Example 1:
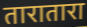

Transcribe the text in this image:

तारातारा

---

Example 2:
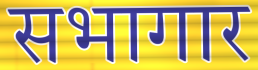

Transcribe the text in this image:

सभागार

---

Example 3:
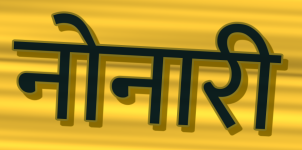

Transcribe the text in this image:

नोनारी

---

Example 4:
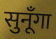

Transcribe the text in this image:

सुनूँगा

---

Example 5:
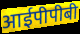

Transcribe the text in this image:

आईपीपीबी